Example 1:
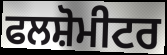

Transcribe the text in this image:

ਫਲਸ਼ੋਮੀਟਰ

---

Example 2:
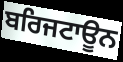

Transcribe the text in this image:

ਬਰਿਜਟਾਊਨ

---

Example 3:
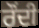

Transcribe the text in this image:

ਰੌਂਦੀ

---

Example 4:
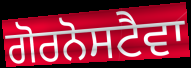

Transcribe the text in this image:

ਗੋਰਨੋਸਟੈਵਾ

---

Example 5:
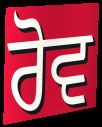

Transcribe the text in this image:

ਰੋਵ